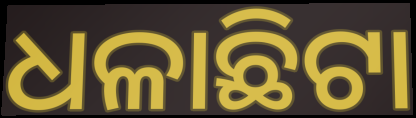
ଧଳାଛିଟା